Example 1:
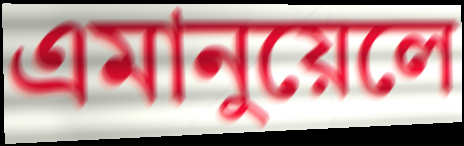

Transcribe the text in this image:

এমানুয়েলে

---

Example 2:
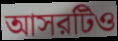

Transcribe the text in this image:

আসরটিও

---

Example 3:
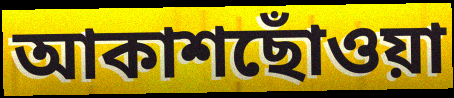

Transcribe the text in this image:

আকাশছোঁওয়া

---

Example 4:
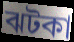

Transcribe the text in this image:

ঝটকা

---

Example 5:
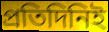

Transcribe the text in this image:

প্রতিদিনিই